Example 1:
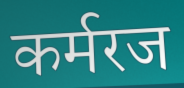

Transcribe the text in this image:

कर्मरज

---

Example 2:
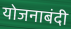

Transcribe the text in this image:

योजनाबंदी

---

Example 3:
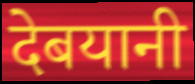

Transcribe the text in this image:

देबयानी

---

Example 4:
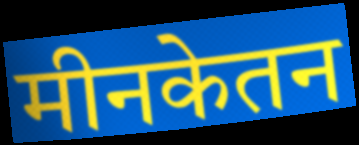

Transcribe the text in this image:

मीनकेतन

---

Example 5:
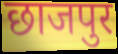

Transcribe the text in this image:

छाजपुर